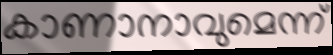
കാണാനാവുമെന്ന്